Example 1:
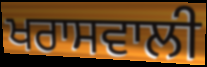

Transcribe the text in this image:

ਖਰਾਸਵਾਲੀ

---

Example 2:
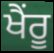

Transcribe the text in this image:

ਖੈਂਰੂ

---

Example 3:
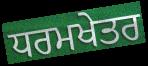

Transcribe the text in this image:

ਧਰਮਖੇਤਰ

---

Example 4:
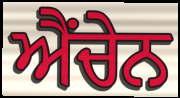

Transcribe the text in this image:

ਐਂਚੇਨ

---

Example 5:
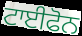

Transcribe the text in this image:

ਟਾਈਫੋਨ